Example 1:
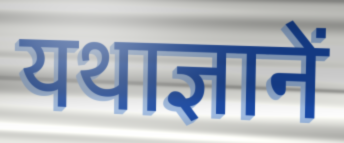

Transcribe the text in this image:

यथाज्ञानें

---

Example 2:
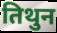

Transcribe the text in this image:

तिथुन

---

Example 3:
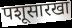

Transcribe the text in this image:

पशूसारखा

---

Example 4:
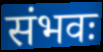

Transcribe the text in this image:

संभवः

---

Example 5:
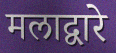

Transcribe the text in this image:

मलाद्वारे